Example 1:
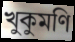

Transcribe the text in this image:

খুকুমণি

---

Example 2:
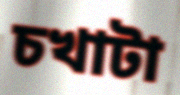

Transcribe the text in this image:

চখাটা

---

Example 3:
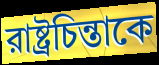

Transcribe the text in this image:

রাষ্ট্রচিন্তাকে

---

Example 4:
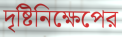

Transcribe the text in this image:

দৃষ্টিনিক্ষেপের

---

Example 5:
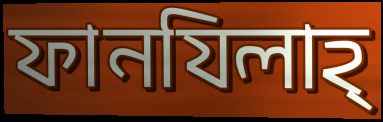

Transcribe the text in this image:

ফানযিলাহ্